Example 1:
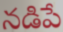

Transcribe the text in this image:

నడిపే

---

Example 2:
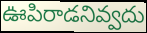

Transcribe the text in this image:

ఊపిరాడనివ్వదు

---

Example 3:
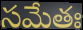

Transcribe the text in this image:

సమేతః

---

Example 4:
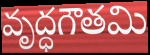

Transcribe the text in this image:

వృద్ధగౌతమి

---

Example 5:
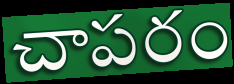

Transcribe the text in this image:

చాపరం